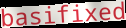
basifixed